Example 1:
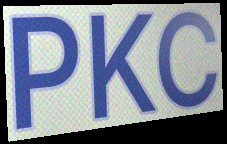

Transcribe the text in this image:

PKC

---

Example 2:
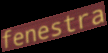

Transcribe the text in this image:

fenestra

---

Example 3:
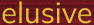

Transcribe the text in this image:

elusive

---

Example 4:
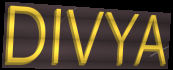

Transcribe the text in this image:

DIVYA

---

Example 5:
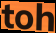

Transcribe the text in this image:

toh